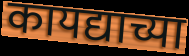
कायद्याच्या